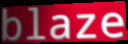
blaze